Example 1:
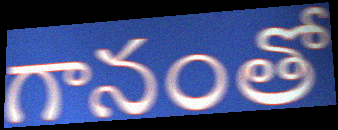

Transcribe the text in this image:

గానంతో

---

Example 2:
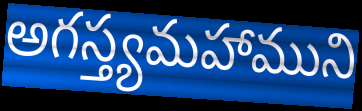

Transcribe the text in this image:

అగస్త్యమహాముని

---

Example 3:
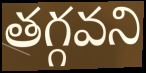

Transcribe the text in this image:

తగ్గవని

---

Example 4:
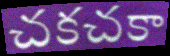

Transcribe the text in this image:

చకచకా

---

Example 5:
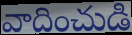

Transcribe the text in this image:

వాదించుడి